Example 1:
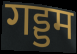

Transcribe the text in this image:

गड्डम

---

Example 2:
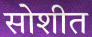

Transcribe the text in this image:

सोशीत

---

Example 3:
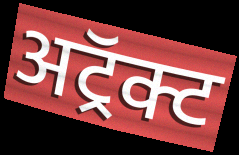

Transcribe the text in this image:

अट्रॅक्ट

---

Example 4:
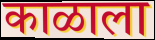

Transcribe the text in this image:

काळाला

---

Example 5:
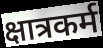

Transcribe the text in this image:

क्षात्रकर्म